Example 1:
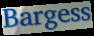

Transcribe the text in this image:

Bargess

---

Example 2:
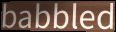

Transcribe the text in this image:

babbled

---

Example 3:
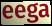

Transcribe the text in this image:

eega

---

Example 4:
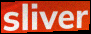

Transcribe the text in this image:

sliver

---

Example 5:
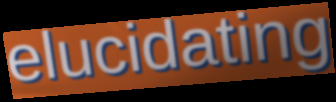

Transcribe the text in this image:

elucidating